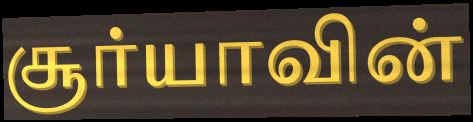
சூர்யாவின்